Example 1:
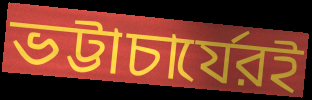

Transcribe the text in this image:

ভট্টাচার্যেরই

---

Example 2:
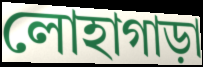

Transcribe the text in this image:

লোহাগাড়া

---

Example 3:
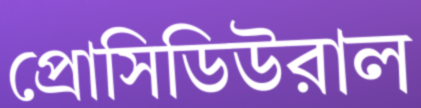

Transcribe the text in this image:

প্রোসিডিউরাল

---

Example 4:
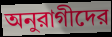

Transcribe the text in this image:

অনুরাগীদের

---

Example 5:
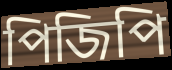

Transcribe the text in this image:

পিজিপি